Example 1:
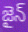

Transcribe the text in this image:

జైన్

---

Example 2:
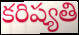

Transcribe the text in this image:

కరిష్యతి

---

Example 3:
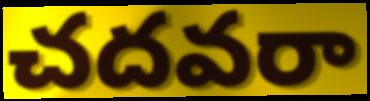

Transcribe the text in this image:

చదవరా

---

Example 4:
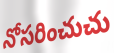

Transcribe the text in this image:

నోసరించుచు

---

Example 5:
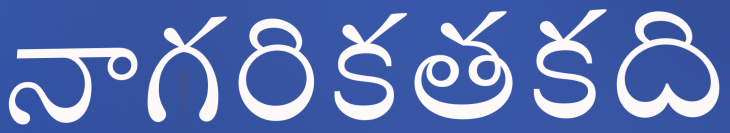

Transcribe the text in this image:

నాగరికతకది